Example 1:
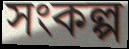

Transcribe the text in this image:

সংকল্প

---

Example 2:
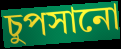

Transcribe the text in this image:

চুপসানো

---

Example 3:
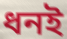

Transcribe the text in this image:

ধনই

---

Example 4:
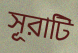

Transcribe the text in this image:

সূরাটি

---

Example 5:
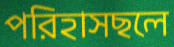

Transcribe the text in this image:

পরিহাসছলে